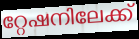
റ്റേഷനിലേക്ക്